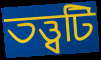
তত্ত্বটি